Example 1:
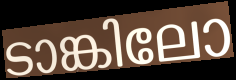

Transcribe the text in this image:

ടാങ്കിലോ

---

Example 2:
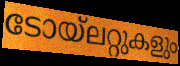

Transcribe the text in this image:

ടോയ്ലറ്റുകളും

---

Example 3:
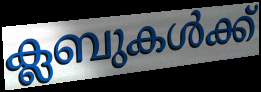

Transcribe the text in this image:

ക്ലബുകൾക്ക്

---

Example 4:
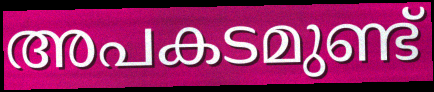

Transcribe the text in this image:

അപകടമുണ്ട്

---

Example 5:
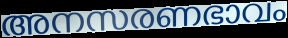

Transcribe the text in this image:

അനസരണഭാവം